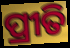
ପ୍ରୀତି